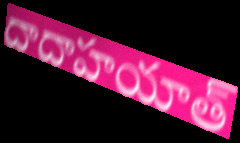
దాదాహయాత్